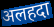
अलहदा